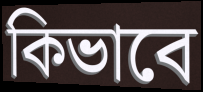
কিভাবে